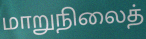
மாறுநிலைத்